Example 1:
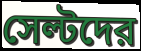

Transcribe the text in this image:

সেল্টদের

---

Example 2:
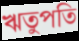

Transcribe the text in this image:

ঋতুপতি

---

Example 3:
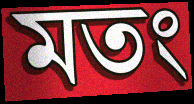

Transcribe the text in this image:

মতং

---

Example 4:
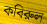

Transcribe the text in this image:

কবিরুল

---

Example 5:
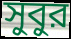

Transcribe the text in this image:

সুবুর